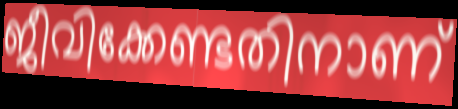
ജീവിക്കേണ്ടതിനാണ്